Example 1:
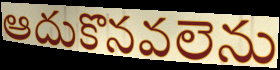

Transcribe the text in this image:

ఆదుకొనవలెను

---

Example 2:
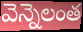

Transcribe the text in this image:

వెన్నెలంత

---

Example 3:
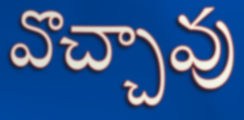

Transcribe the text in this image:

వొచ్చావు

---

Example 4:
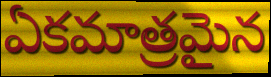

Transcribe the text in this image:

ఏకమాత్రమైన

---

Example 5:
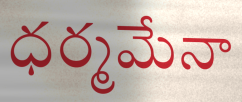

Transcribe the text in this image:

ధర్మమేనా